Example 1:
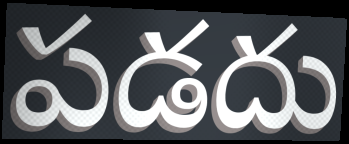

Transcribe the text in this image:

పడదు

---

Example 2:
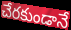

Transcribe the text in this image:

చేరకుండానే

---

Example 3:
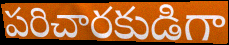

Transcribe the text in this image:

పరిచారకుడిగా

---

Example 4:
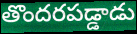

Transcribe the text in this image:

తొందరపడ్డాడు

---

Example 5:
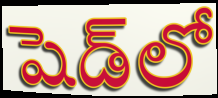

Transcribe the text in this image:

షెడ్‌లో